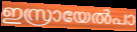
ഇസ്രായേൽപാ